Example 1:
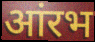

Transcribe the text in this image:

आंरभ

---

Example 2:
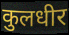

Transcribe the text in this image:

कुलधीर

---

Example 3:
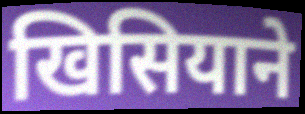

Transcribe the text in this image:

खिसियाने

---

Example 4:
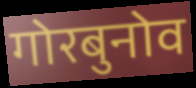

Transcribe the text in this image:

गोरबुनोव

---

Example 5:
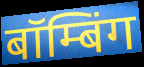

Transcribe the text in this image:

बॉम्बिंग